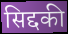
सिद्दकी